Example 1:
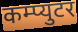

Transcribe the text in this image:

कम्प्युटर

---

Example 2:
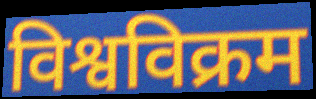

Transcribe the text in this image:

विश्वविक्रम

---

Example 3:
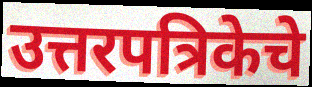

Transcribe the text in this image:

उत्तरपत्रिकेचे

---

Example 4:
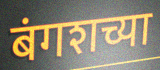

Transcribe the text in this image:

बंगशच्या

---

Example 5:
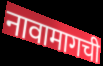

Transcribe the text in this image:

नावामागची